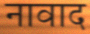
नावाद